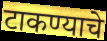
टाकण्याचे